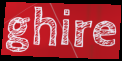
ghire